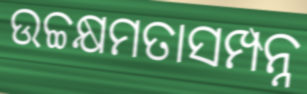
ଉଚ୍ଚକ୍ଷମତାସମ୍ପନ୍ନ